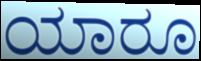
ಯಾರೂ